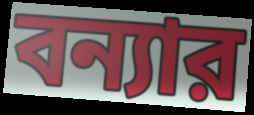
বন্যার